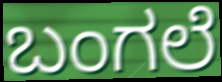
ಬಂಗಲೆ